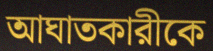
আঘাতকারীকে